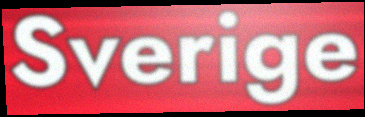
Sverige